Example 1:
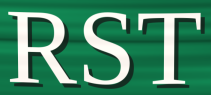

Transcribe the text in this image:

RST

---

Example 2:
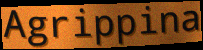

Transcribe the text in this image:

Agrippina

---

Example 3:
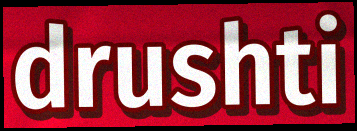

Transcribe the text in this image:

drushti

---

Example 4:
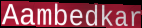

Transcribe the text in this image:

Aambedkar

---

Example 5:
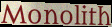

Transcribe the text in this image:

Monolith